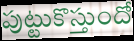
పుట్టుకొస్తుందో